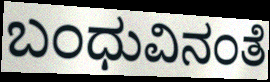
ಬಂಧುವಿನಂತೆ